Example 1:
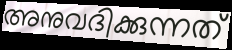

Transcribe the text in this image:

അനുവദിക്കുന്നത്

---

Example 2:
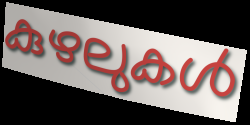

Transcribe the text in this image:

കുഴലുകൾ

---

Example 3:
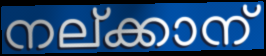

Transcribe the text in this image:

നല്ക്കാന്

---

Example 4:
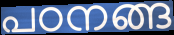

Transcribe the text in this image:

പഠനങ്ങ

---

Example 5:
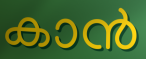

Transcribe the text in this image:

കാൻ